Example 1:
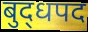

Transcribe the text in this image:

बुद्धपद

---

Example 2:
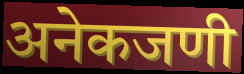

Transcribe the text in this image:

अनेकजणी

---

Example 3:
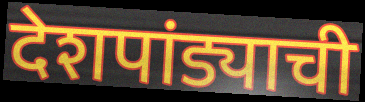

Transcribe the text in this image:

देशपांड्याची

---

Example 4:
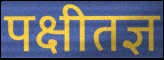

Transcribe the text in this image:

पक्षीतज्ञ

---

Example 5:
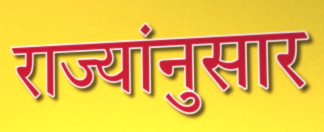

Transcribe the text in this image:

राज्यांनुसार